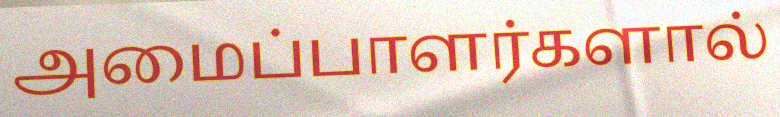
அமைப்பாளர்களால்